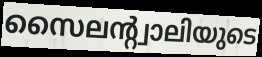
സൈലന്റ്വാലിയുടെ